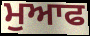
ਮੁਆਫ